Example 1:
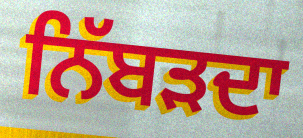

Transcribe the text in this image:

ਨਿੱਬੜਦਾ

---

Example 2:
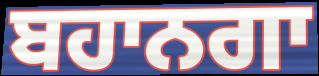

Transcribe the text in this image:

ਬਹਾਨਗਾ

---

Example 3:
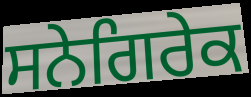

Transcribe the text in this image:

ਸਨੇਗਿਰੇਕ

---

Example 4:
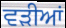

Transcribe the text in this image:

ਵੜੀਆਂ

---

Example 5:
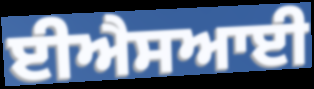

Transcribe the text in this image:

ਈਐਸਆਈ